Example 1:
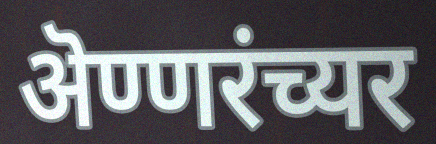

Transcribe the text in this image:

ऄण्णरंच्यर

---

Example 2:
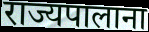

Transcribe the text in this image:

राज्यपालाना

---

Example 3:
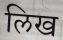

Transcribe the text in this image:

लिख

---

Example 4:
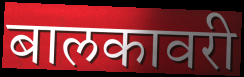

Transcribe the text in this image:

बालकावरी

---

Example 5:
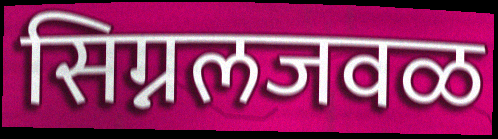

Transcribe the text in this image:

सिग्नलजवळ